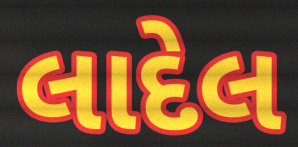
લાદેલ